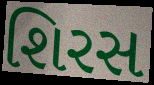
શિરસ